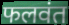
फलवंत